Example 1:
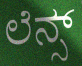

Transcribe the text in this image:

ಲೆನ್ಸ್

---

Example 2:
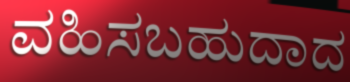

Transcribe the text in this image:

ವಹಿಸಬಹುದಾದ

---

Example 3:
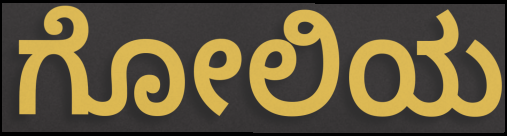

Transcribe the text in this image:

ಗೋಲಿಯ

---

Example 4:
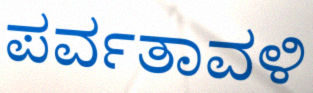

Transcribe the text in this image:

ಪರ್ವತಾವಳಿ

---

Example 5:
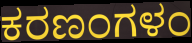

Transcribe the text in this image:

ಕರಣಂಗಳಂ